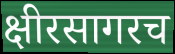
क्षीरसागरच